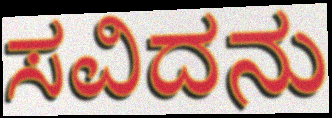
ಸವಿದನು